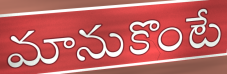
మానుకొంటే